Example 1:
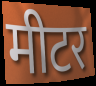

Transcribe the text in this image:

मीटर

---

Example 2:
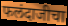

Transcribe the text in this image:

फलंदाजीचा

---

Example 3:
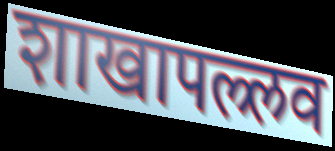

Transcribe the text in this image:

शाखापल्लव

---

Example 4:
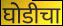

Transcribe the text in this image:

घोडीचा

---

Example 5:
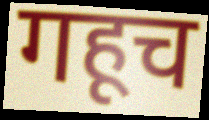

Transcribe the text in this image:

गहूच